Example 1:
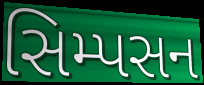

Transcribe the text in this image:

સિમ્પસન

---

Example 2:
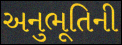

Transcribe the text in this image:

અનુભૂતિની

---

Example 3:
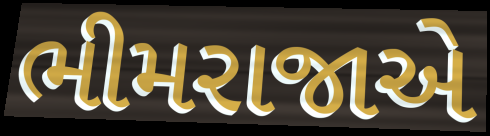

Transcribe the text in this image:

ભીમરાજાએ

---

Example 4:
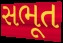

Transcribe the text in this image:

સભૂત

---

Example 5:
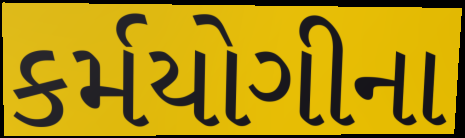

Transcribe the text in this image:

કર્મયોગીના